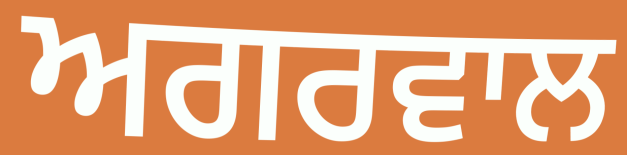
ਅਗਰਵਾਲ